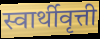
स्वार्थीवृत्ती